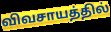
விவசாயத்தில்